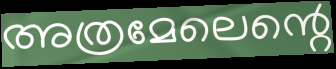
അത്രമേലെന്റെ